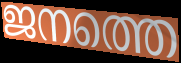
ജനത്തെ